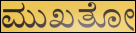
ಮುಖತೋ